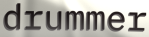
drummer